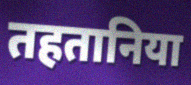
तहतानिया